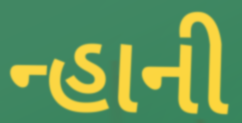
ન્હાની